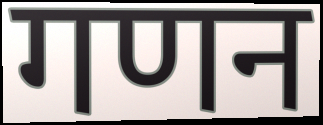
गणन